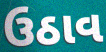
ઉઠાવ